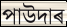
পাউদাৰ